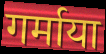
गर्माया